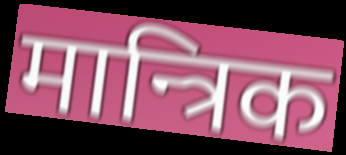
मान्त्रिक